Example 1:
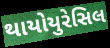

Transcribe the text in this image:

થાયોયુરેસિલ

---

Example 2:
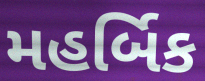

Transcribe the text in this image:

મહર્બિક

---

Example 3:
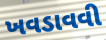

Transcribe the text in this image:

ખવડાવવી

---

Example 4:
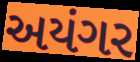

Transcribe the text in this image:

અયંગર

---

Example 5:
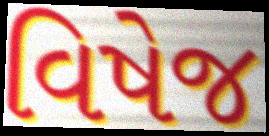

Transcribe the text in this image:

વિષેજ